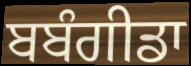
ਬਬੰਗੀਡਾ